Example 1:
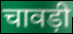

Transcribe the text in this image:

चावड़ी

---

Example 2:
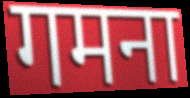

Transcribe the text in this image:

गमना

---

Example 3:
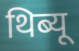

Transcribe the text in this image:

थिब्यू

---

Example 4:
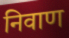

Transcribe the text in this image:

निवाण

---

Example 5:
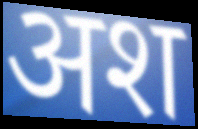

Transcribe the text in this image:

अश